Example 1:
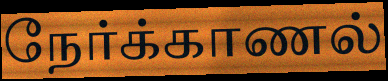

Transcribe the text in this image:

நேர்க்காணல்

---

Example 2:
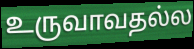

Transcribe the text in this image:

உருவாவதல்ல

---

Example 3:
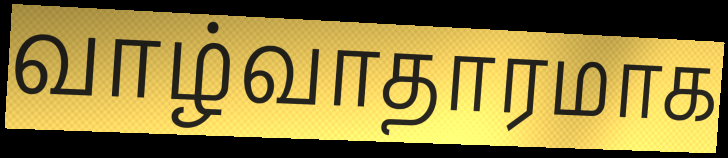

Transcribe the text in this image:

வாழ்வாதாரமாக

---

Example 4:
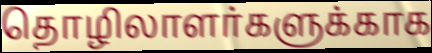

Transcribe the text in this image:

தொழிலாளர்களுக்காக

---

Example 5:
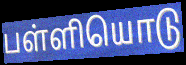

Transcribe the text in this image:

பள்ளியொடு